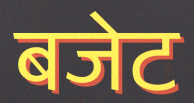
बजेट